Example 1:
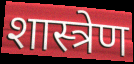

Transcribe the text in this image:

शास्त्रेण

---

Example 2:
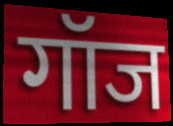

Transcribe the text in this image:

गॉज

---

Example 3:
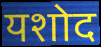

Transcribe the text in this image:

यशोद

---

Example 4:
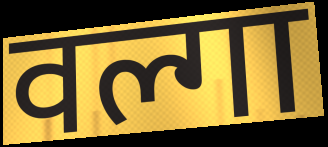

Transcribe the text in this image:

वल्गा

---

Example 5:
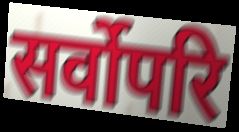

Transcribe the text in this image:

सर्वोपरि